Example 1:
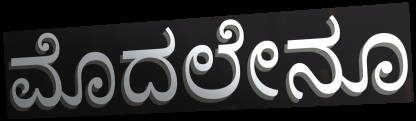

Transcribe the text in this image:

ಮೊದಲೇನೂ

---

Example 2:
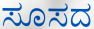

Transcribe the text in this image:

ಸೂಸದ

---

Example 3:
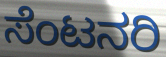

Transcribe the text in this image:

ಸೆಂಟನರಿ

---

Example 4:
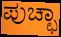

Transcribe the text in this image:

ಪುಚ್ಛಾ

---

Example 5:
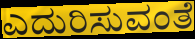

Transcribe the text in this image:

ಎದುರಿಸುವಂತೆ